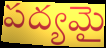
పద్యమై